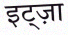
इट्ज़ा